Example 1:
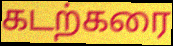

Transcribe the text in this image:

கடற்கரை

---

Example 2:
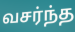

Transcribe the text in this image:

வசர்ந்த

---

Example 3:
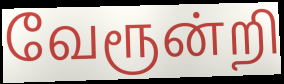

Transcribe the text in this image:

வேரூன்றி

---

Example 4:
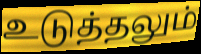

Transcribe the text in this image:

உடுத்தலும்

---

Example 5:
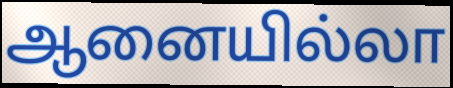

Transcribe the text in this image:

ஆனையில்லா